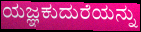
ಯಜ್ಞಕುದುರೆಯನ್ನು